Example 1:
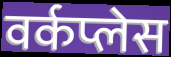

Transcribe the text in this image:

वर्कप्लेस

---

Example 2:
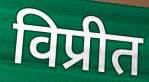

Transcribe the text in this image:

विप्रीत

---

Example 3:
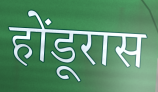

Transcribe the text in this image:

होंडूरास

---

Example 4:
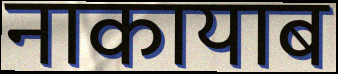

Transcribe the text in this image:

नाकायाब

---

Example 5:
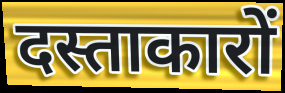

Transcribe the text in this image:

दस्ताकारों